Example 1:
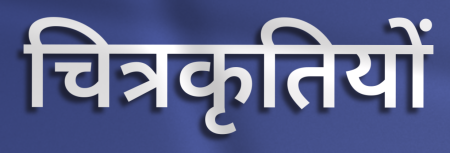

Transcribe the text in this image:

चित्रकृतियों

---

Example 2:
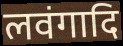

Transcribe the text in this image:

लवंगादि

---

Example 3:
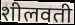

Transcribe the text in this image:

शीलवती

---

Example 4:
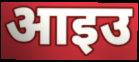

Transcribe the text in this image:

आइउ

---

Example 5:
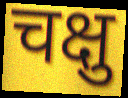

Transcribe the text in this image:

चक्षु